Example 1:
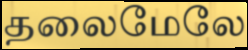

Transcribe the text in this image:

தலைமேலே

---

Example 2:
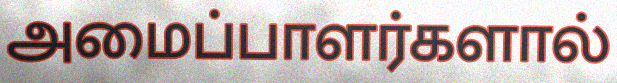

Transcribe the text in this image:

அமைப்பாளர்களால்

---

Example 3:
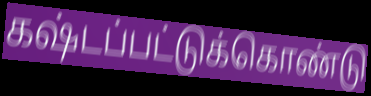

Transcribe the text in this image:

கஷ்டப்பட்டுக்கொண்டு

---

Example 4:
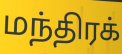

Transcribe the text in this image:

மந்திரக்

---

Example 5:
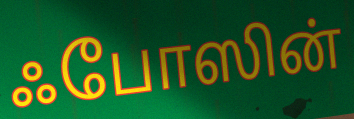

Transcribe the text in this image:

ஃபோஸின்